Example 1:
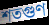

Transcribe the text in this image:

শতগুণ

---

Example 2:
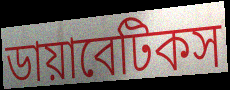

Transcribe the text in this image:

ডায়াবেটিকস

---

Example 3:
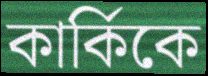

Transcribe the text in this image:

কার্কিকে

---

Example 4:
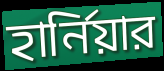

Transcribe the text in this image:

হার্নিয়ার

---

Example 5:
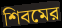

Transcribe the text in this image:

শিবমের